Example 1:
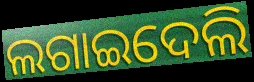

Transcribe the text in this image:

ଲଗାଇଦେଲି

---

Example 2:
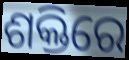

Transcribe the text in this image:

ଶକ୍ତିରେ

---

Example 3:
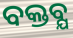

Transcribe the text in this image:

ବକ୍ତବ୍ଯ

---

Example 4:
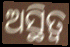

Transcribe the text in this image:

ଅସ୍ଥିତ୍ୱ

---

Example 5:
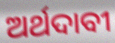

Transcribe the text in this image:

ଅର୍ଥଦାବୀ